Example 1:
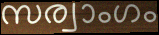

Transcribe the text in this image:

സര്വാംഗം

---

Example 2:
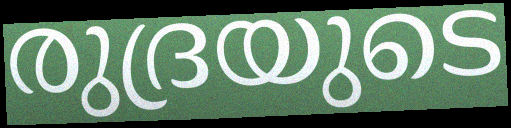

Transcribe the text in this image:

രുദ്രയുടെ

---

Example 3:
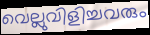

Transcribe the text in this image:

വെല്ലുവിളിച്ചവരും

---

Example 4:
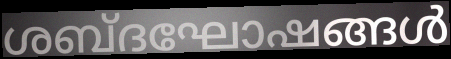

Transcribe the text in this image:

ശബ്ദഘോഷങ്ങൾ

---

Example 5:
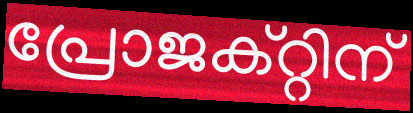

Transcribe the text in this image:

പ്രോജക്റ്റിന്